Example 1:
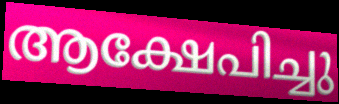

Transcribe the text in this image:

ആക്ഷേപിച്ചു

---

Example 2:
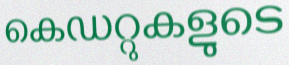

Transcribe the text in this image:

കെഡറ്റുകളുടെ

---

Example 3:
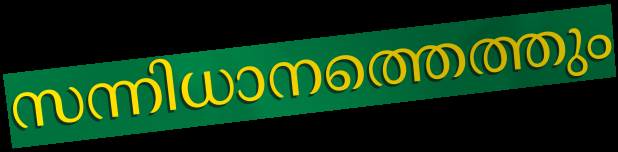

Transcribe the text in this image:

സന്നിധാനത്തെത്തും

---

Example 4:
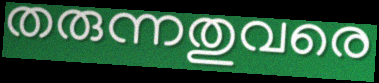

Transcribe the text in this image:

തരുന്നതുവരെ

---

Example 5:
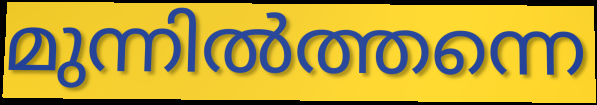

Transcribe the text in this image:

മുന്നിൽത്തന്നെ